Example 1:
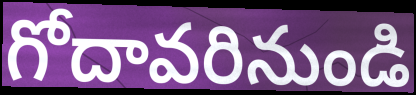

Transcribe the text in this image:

గోదావరినుండి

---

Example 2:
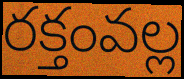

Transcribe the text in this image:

రక్తంవల్ల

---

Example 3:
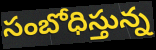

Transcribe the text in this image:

సంబోధిస్తున్న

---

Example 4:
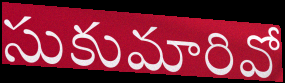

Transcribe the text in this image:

సుకుమారివో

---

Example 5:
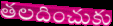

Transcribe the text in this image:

తలదించుకు